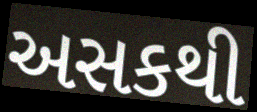
અસકથી